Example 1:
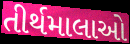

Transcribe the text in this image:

તીર્થમાલાઓ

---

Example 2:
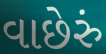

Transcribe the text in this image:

વાછેરું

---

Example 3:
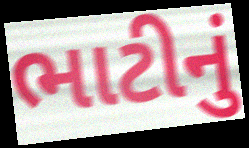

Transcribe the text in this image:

ભાટીનું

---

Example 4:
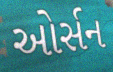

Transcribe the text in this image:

ઓર્સન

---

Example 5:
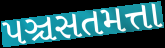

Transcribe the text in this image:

પઞ્ચસતમત્તા